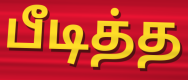
பீடித்த